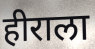
हीराला